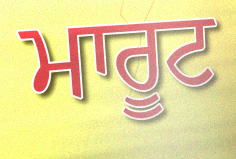
ਮਾਰੂਟ